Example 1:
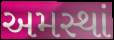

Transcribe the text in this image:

અમસ્થાં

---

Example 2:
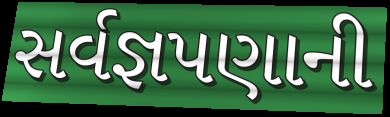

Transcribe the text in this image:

સર્વજ્ઞપણાની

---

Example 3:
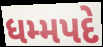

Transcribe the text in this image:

ધમ્મપદે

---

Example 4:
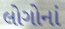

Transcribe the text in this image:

લોગોનાં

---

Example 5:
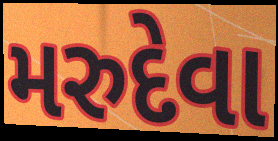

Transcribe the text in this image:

મરુદેવા